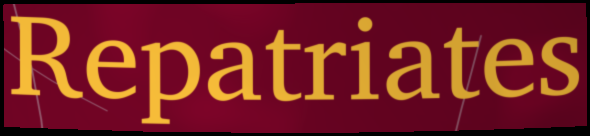
Repatriates